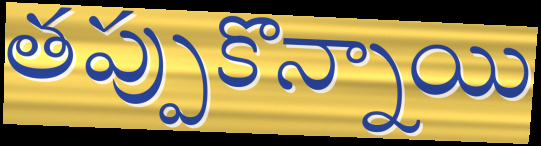
తప్పుకొన్నాయి